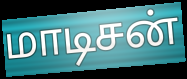
மாடிசன்